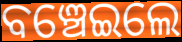
ବଞ୍ଚେଇଲେ